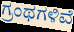
ಗ್ರಂಥಗಳಿವೆ